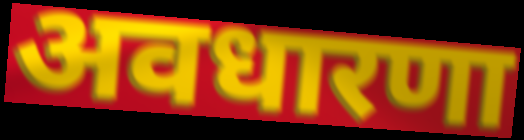
अवधारणा